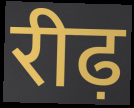
रीढ़